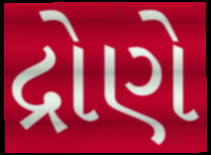
દ્રોણે